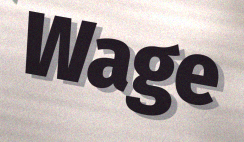
Wage